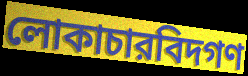
লোকাচারবিদগণ